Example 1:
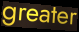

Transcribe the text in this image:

greater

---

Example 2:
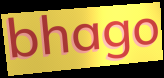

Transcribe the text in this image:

bhago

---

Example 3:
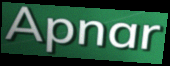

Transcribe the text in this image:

Apnar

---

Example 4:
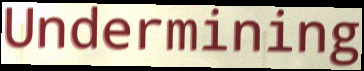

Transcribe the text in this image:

Undermining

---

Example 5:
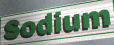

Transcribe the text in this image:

Sodium